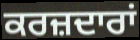
ਕਰਜ਼ਦਾਰਾਂ